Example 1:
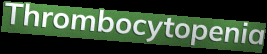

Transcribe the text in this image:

Thrombocytopenia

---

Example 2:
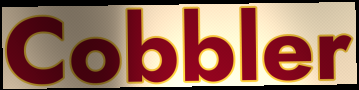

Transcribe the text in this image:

Cobbler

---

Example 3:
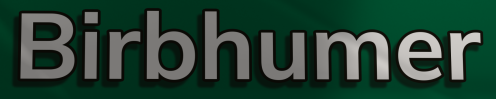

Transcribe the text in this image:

Birbhumer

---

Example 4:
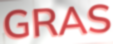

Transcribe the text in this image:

GRAS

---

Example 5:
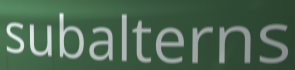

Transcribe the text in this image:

subalterns